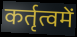
कर्तृत्वमें